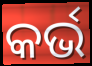
କର୍ଭ